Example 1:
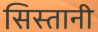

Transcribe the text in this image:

सिस्तानी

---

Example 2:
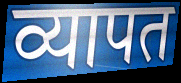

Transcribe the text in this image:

व्यापत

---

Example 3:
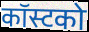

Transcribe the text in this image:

कॉस्टको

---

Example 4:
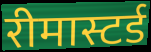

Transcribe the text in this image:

रीमास्टर्ड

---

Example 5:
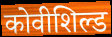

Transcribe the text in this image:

कोवीशिल्ड